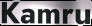
Kamru